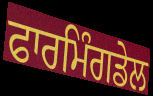
ਫਾਰਮਿੰਗਡੇਲ